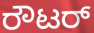
ರೌಟರ್